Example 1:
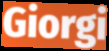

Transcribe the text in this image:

Giorgi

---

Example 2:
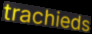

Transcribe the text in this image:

trachieds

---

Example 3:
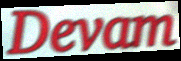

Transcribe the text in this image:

Devam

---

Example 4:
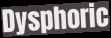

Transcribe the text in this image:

Dysphoric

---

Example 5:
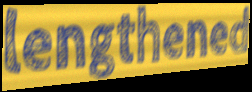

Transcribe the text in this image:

lengthened